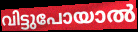
വിട്ടുപോയാൽ